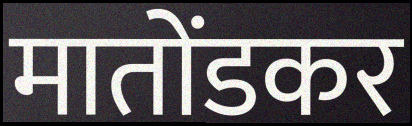
मातोंडकर